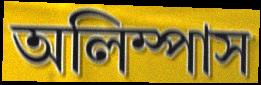
অলিম্পাস